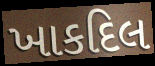
ખાકદિલ